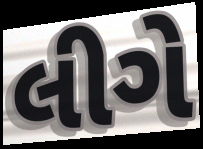
લીગે